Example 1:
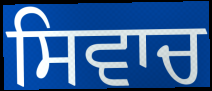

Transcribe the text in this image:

ਸਿਵਾਚ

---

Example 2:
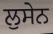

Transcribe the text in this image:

ਲੁਸੇਨ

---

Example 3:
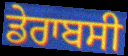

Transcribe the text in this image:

ਡੇਰਾਬਸੀ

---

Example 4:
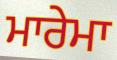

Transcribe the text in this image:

ਮਾਰੇਮਾ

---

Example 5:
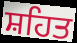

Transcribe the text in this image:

ਸ਼ਹਿਤ